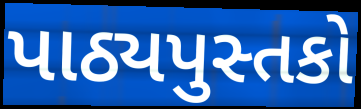
પાઠ્યપુસ્તકો